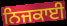
ਨਿਜਕਾਈ